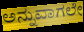
ಅನ್ನುವಾಗಲೇ